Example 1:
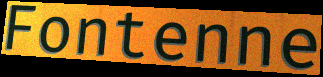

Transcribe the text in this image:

Fontenne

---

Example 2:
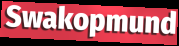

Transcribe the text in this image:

Swakopmund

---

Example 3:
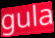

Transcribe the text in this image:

gula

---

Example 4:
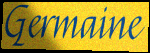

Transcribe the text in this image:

Germaine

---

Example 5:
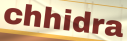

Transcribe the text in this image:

chhidra